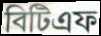
বিটিএফ